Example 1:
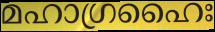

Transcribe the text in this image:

മഹാഗ്രഹൈഃ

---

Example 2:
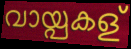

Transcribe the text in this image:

വായ്പകള്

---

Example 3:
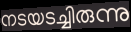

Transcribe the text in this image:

നടയടച്ചിരുന്നു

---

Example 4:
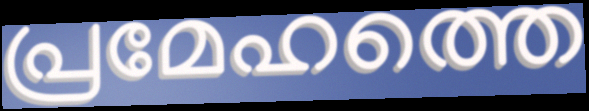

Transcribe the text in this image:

പ്രമേഹത്തെ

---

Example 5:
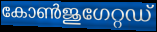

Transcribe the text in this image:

കോൺജുഗേറ്റഡ്